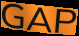
GAP